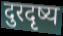
दुरदृष्य